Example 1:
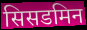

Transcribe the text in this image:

सिसडमिन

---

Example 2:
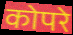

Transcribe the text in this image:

कोपरे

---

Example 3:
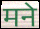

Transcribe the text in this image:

मने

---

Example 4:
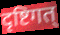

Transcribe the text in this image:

दृष्टिगत्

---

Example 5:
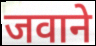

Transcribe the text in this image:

जवाने